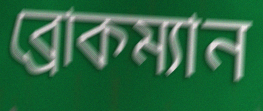
ব্রোকম্যান